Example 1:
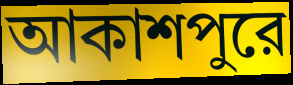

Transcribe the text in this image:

আকাশপুরে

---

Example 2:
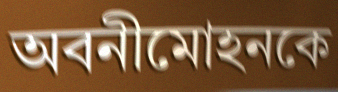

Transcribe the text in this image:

অবনীমোহনকে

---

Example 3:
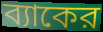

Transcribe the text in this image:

ব্যাকের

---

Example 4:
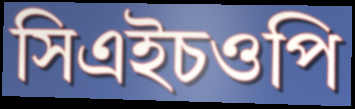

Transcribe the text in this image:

সিএইচওপি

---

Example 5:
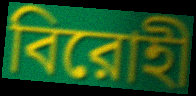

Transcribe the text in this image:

বিরোহী